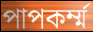
পাপকর্ম্ম